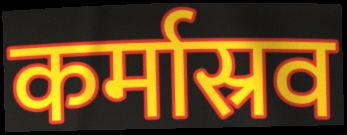
कर्मास्रव